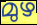
മുഴ